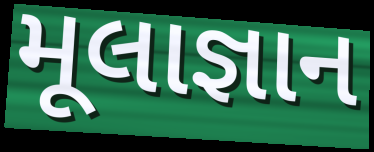
મૂલાજ્ઞાન